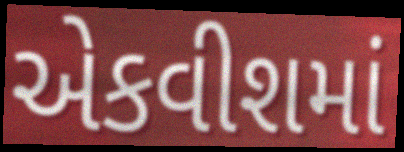
એકવીશમાં